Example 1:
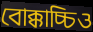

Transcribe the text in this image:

বোক্কাচ্চিও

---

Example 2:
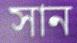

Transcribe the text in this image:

সান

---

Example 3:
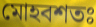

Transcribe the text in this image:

মোহবশতঃ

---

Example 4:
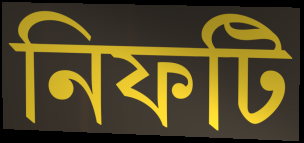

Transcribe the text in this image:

নিফটি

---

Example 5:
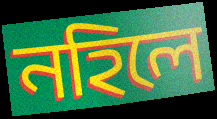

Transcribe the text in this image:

নহিলে